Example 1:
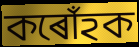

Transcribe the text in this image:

কৰোঁহক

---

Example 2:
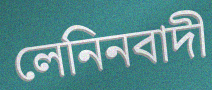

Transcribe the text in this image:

লেনিনবাদী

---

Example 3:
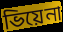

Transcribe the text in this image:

ভিয়েনা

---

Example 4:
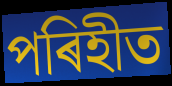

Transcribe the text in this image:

পৰিহীত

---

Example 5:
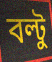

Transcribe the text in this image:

বল্টু